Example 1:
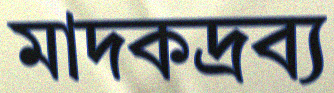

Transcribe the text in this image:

মাদকদ্রব্য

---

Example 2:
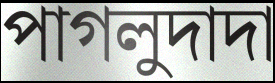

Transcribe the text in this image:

পাগলুদাদা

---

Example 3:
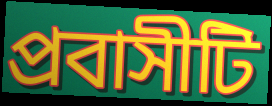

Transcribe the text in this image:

প্রবাসীটি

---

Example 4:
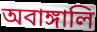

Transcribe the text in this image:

অবাঙ্গালি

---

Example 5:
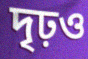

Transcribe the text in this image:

দৃঢ়ও